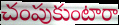
చంపుకుంటారా